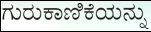
ಗುರುಕಾಣಿಕೆಯನ್ನು